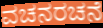
ವಚನರಚನೆ